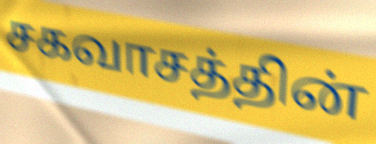
சகவாசத்தின்